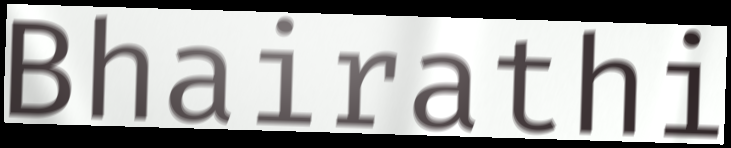
Bhairathi